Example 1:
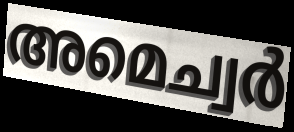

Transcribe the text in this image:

അമെച്വർ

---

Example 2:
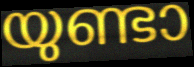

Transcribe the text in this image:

യുണ്ടാ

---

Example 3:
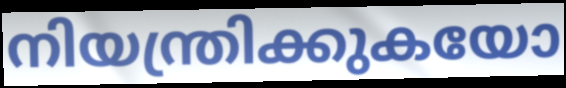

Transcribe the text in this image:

നിയന്ത്രിക്കുകയോ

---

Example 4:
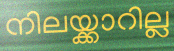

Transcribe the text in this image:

നിലയ്ക്കാറില്ല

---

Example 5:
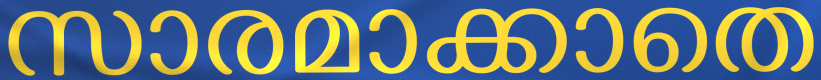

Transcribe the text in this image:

സാരമാക്കാതെ